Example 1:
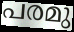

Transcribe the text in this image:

പരമു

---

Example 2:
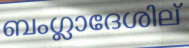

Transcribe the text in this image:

ബംഗ്ലാദേശില്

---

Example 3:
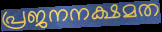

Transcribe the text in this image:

പ്രജനനക്ഷമത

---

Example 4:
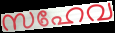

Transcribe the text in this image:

സഹേവ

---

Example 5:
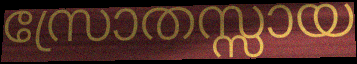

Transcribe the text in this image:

സ്രോതസ്സായ